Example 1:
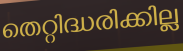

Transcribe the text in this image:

തെറ്റിദ്ധരിക്കില്ല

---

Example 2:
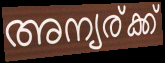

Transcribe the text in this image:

അന്യര്ക്ക്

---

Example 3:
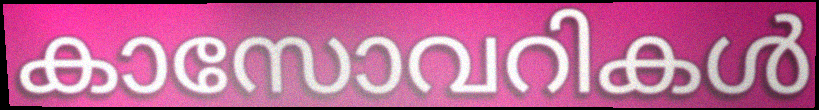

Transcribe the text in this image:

കാസോവറികൾ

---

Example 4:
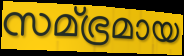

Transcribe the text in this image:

സമ്ഭ്രമായ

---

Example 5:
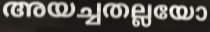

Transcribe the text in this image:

അയച്ചതല്ലയോ